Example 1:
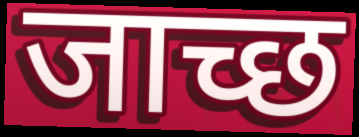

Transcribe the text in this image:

जाच्छ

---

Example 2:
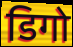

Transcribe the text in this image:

डिगो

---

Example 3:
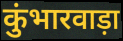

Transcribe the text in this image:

कुंभारवाड़ा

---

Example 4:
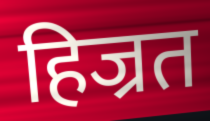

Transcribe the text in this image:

हिज्रत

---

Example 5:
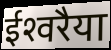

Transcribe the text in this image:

ईश्वरैया